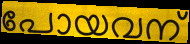
പോയവന്